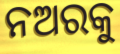
ନଅରକୁ